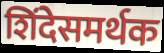
शिंदेसमर्थक